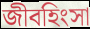
জীবহিংসা